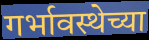
गर्भावस्थेच्या